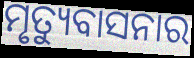
ମୃତ୍ୟୁବାସନାର